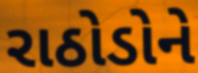
રાઠોડોને